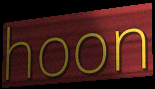
hoon